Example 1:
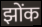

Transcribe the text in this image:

झोंक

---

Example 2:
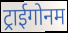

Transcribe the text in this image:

ट्राईगोनम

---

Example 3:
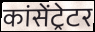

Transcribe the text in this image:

कांसेंट्रेटर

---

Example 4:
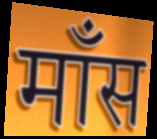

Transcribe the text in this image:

मॉंस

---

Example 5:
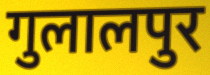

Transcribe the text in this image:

गुलालपुर